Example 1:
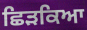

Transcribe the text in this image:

ਛਿੜਕਿਆ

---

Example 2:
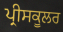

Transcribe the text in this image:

ਪ੍ਰੀਸਕੂਲਰ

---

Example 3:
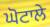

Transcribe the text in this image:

ਘੋਟਾਲੇ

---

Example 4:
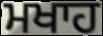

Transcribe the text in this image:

ਮਖਾਹ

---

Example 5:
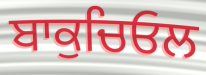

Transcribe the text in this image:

ਬਾਕੁਚਿਓਲ